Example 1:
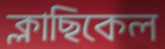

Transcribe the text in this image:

ক্লাছিকেল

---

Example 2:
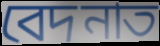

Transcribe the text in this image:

বেদনাত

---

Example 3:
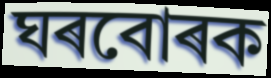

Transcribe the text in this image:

ঘৰবোৰক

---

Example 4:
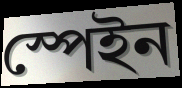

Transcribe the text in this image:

স্পেইন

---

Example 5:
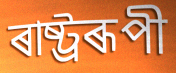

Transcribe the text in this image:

ৰাষ্ট্ৰৰূপী